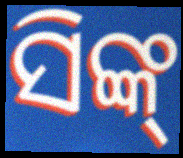
ସିଙ୍କ୍